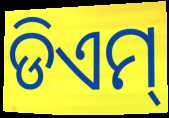
ଡିଏମ୍